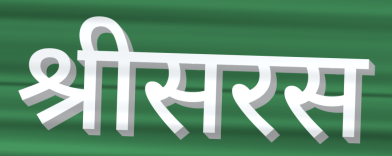
श्रीसरस